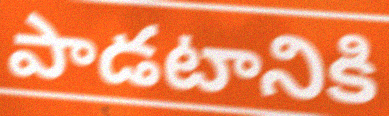
పాడటానికి